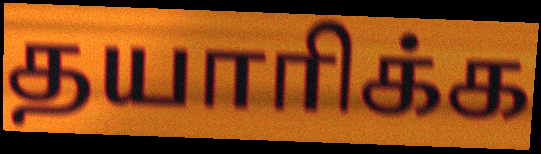
தயாரிக்க